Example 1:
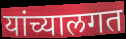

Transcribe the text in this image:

यांच्यालगत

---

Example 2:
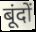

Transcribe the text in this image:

बूंदों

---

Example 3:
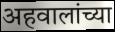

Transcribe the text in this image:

अहवालांच्या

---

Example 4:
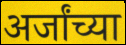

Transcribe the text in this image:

अर्जांच्या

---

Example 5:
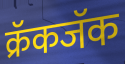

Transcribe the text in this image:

क्रॅकजॅक